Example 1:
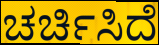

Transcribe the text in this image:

ಚರ್ಚಿಸಿದೆ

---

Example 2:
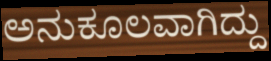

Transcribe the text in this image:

ಅನುಕೂಲವಾಗಿದ್ದು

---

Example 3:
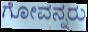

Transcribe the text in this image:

ಗೋವನ್ನರು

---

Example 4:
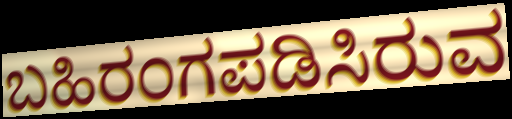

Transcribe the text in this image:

ಬಹಿರಂಗಪಡಿಸಿರುವ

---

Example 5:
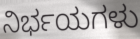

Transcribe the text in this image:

ನಿರ್ಭಯಗಳು